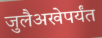
जुलैअखेपर्यंत